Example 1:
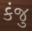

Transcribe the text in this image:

કંજુ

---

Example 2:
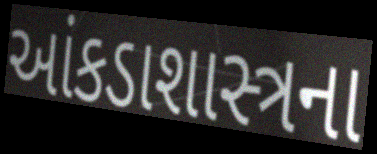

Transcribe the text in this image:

આંકડાશાસ્ત્રના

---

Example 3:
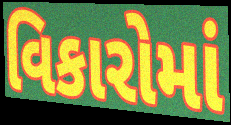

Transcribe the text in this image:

વિકારોમાં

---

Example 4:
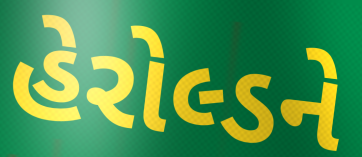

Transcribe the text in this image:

હેરોલ્ડને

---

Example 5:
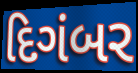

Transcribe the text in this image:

દિગંબર